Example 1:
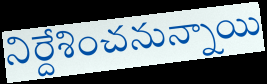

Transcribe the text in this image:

నిర్దేశించనున్నాయి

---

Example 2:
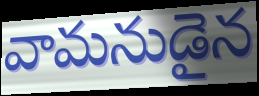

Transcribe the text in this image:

వామనుడైన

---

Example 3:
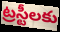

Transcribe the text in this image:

ట్రస్టీలకు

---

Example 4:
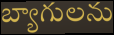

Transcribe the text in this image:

బ్యాగులను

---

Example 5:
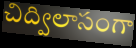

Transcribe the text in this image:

చిద్విలాసంగా